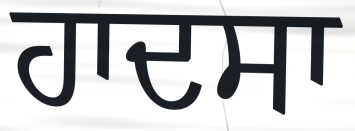
ਹਾਦਸਾ